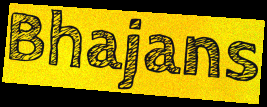
Bhajans